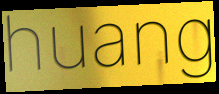
huang